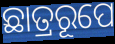
ଛାତ୍ରରୂପେ